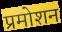
प्रमोशन